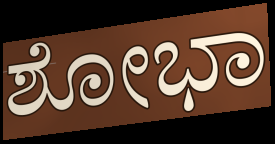
ಶೋಭಾ